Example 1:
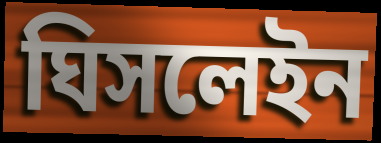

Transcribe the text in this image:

ঘিসলেইন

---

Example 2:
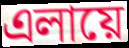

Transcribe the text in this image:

এলায়ে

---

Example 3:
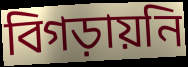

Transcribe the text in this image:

বিগড়ায়নি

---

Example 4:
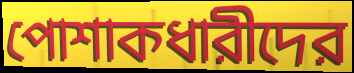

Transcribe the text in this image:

পোশাকধারীদের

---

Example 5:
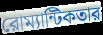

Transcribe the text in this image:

রোম্যান্টিকতার